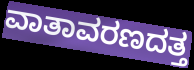
ವಾತಾವರಣದತ್ತ